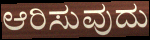
ಆರಿಸುವುದು